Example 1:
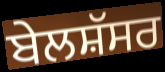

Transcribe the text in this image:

ਬੇਲਸ਼ੱਸਰ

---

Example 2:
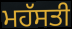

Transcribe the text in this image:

ਮਹੱਸਤੀ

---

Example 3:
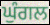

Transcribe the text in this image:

ਘੁੰਗਲ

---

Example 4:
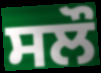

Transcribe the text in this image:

ਸਲੌ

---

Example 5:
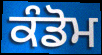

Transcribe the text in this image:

ਕੰਡੋਮ